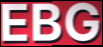
EBG